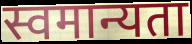
स्वमान्यता